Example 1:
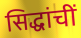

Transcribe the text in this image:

सिद्धांचीं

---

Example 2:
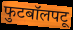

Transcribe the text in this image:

फुटबॉलपटू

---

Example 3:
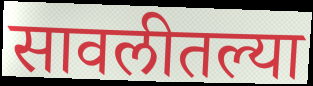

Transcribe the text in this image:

सावलीतल्या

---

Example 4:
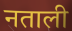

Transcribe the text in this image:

नताली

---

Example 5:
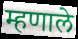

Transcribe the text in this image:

म्हणाले